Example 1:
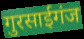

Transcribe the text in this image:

गुरसाईगंज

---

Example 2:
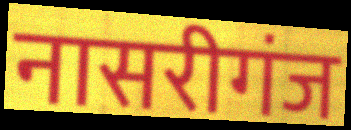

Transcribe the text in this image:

नासरीगंज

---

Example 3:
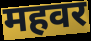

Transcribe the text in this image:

महवर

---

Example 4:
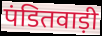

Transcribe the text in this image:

पंडितवाड़ी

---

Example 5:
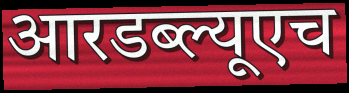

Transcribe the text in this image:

आरडब्ल्यूएच